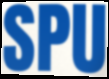
SPU